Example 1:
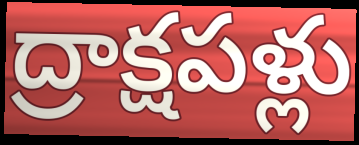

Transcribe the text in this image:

ద్రాక్షపళ్లు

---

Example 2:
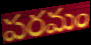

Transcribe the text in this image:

పరమం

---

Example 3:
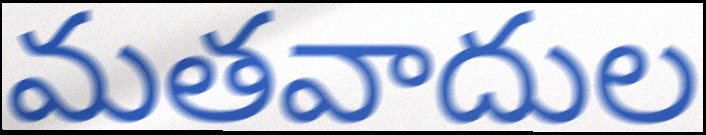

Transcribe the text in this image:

మతవాదుల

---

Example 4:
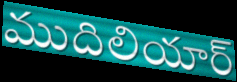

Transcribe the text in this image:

ముదిలియార్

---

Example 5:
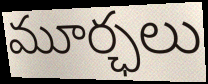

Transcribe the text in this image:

మూర్ఛలు